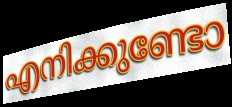
എനിക്കുണ്ടോ